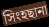
সিংহছানা